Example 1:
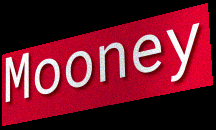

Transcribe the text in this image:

Mooney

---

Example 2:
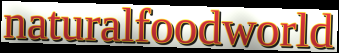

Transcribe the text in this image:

naturalfoodworld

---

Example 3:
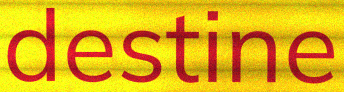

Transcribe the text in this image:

destine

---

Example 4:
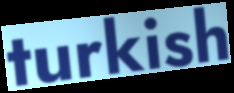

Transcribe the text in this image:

turkish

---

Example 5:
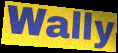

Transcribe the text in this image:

Wally